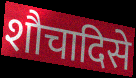
शौचादिसे